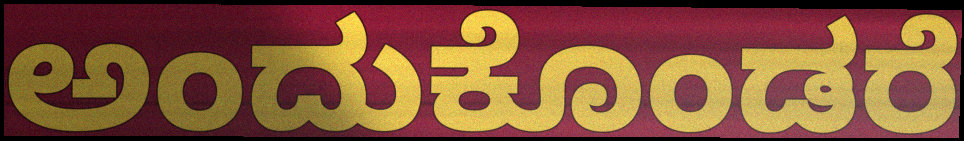
ಅಂದುಕೊಂಡರೆ